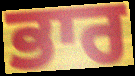
ਭਾਰ